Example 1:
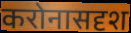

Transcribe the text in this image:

करोनासदृश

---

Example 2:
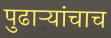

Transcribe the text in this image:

पुढाऱ्यांचाच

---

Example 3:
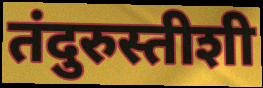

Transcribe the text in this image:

तंदुरुस्तीशी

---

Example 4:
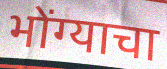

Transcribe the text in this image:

भोंग्याचा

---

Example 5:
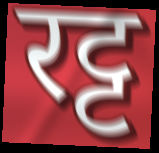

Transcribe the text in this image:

रट्ट